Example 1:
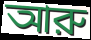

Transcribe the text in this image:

আৰু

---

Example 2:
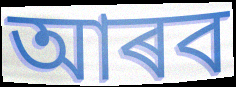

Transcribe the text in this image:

আৰব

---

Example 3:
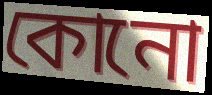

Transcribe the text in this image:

কোনো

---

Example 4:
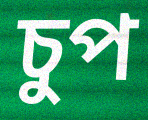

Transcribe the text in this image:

চুপ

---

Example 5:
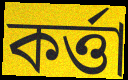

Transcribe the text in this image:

কৰ্ত্তা